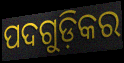
ପଦଗୁଡ଼ିକର